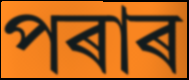
পৰাৰ